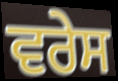
ਵਰੇਸ